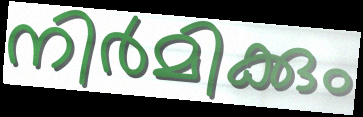
നിർമിക്കും